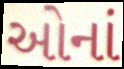
ઓનાં